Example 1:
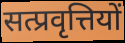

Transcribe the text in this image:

सत्प्रवृत्तियों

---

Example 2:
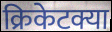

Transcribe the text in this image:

क्रिकेटक्या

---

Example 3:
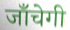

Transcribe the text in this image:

जाँचेगी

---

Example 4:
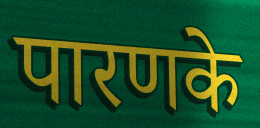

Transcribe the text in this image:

पारणके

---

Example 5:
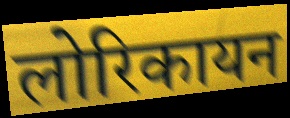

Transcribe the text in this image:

लोरिकायन